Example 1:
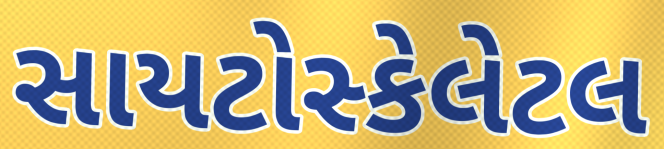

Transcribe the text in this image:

સાયટોસ્કેલેટલ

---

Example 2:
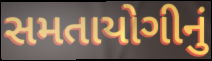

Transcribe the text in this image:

સમતાયોગીનું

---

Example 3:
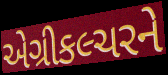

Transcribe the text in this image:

એગ્રીકલ્ચરને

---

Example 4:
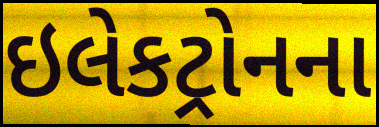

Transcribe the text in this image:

ઇલેકટ્રોનના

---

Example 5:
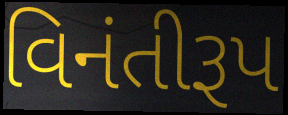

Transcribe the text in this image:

વિનંતીરૂપ